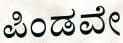
ಪಿಂಡವೇ